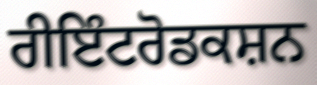
ਰੀਇੰਟਰੋਡਕਸ਼ਨ